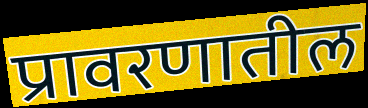
प्रावरणातील